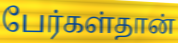
பேர்கள்தான்